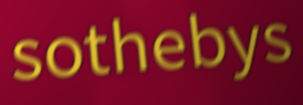
sothebys